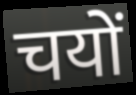
चयों